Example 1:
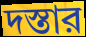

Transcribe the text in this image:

দস্তার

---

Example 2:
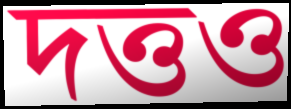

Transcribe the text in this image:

দত্তও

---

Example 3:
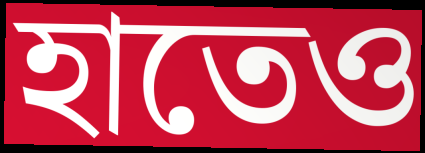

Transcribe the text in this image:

হাতেও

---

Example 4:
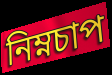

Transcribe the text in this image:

নিম্নচাপ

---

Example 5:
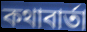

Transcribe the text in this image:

কথাবার্তা